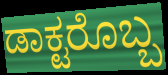
ಡಾಕ್ಟರೊಬ್ಬ